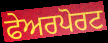
ਫੇਅਰਪੋਰਟ